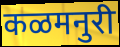
कळमनुरी